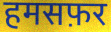
हमसफ़र